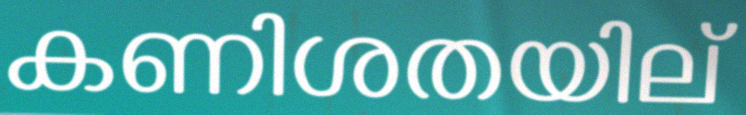
കണിശതയില്